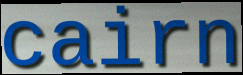
cairn